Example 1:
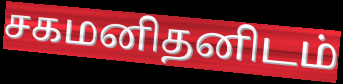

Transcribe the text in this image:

சகமனிதனிடம்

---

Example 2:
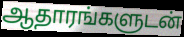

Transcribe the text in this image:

ஆதாரங்களுடன்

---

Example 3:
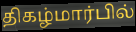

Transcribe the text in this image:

திகழ்மார்பில்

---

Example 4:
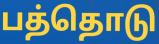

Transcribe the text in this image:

பத்தொடு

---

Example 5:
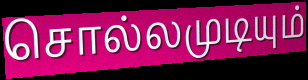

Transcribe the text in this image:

சொல்லமுடியும்